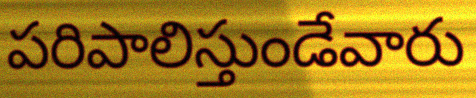
పరిపాలిస్తుండేవారు